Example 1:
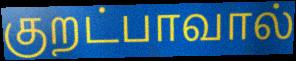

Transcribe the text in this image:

குறட்பாவால்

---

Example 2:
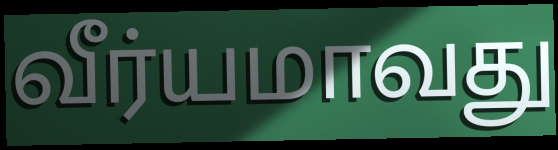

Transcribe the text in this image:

வீர்யமாவது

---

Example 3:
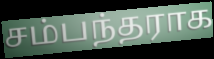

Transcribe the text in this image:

சம்பந்தராக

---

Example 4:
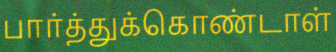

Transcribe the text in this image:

பார்த்துக்கொண்டாள்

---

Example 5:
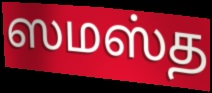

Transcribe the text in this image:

ஸமஸ்த